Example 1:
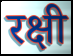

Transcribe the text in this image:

रक्षी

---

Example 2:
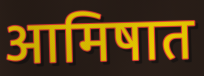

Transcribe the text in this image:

आमिषात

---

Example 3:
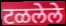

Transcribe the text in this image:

टळलेले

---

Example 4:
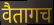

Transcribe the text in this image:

वैतागच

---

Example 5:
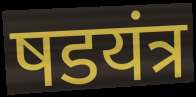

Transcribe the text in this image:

षडयंत्र